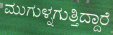
ಮುಗುಳ್ನಗುತ್ತಿದ್ದಾರೆ